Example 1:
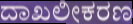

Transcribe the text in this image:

ದಾಖಲೀಕರಣ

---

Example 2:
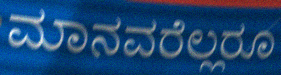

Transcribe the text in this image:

ಮಾನವರೆಲ್ಲರೂ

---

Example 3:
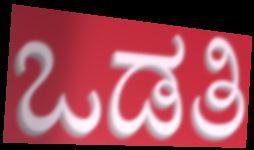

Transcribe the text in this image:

ಒಡತಿ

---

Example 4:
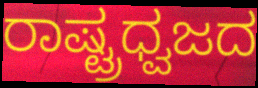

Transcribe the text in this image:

ರಾಷ್ಟ್ರಧ್ವಜದ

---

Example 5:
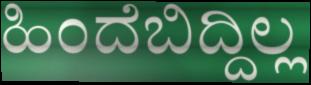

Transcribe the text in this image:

ಹಿಂದೆಬಿದ್ದಿಲ್ಲ